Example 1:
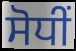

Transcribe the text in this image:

ਸੋਧੀਂ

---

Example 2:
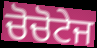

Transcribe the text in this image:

ਚੋਚੋਟੇਜ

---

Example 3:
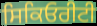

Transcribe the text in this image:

ਸਿਕਿਓਰੀਟੀ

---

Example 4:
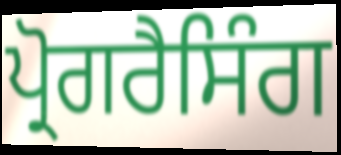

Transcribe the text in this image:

ਪ੍ਰੋਗਰੈਸਿੰਗ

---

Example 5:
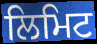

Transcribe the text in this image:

ਲਿਮਿਟ